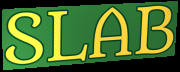
SLAB